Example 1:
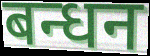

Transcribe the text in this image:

बन्धन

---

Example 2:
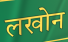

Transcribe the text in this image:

लखोन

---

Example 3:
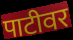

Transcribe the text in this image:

पाटीवर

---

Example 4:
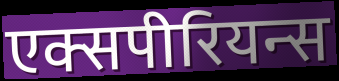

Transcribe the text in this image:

एक्सपीरियन्स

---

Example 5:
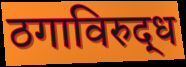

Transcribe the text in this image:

ठगाविरुद्ध